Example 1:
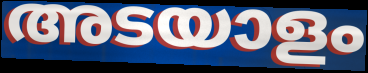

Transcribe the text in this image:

അടയാളം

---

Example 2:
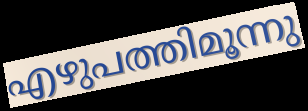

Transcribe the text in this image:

എഴുപത്തിമൂന്നു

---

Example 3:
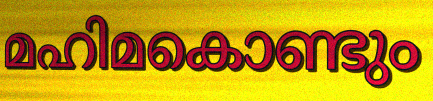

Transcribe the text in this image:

മഹിമകൊണ്ടും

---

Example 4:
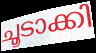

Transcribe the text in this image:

ചൂടാക്കി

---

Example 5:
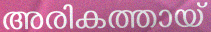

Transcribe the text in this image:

അരികത്തായ്